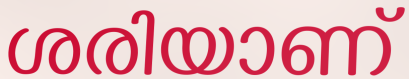
ശരിയാണ്